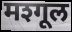
मश्गूल